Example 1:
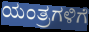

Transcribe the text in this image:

ಯಂತ್ರಗಳಿಗೆ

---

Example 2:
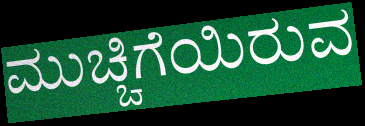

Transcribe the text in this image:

ಮುಚ್ಚಿಗೆಯಿರುವ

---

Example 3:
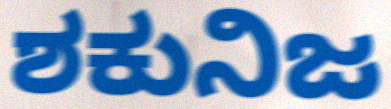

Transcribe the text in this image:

ಶಕುನಿಜ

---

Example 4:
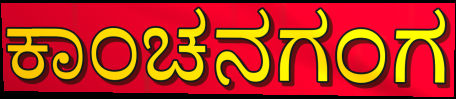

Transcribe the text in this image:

ಕಾಂಚನಗಂಗ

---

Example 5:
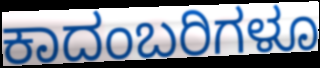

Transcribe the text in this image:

ಕಾದಂಬರಿಗಳೂ